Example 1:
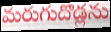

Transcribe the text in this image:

మరుగుదొడ్లను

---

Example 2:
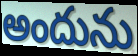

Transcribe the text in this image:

అందును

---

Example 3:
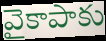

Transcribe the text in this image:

వైకాపాకు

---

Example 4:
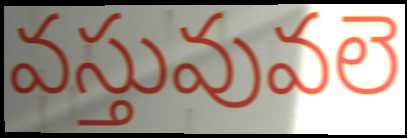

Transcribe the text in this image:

వస్తువువలె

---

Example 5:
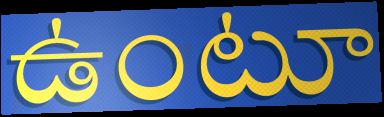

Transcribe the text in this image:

ఉంటూ